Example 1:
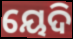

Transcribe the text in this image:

ୟେଦି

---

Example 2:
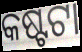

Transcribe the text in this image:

କଷ୍ଟଟା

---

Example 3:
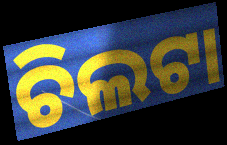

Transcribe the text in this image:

ଚିଲଟା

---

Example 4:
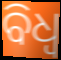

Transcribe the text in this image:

ବିଧ୍ଵ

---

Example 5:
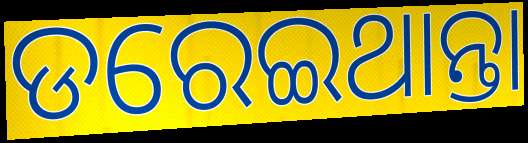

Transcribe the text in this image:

ଡରେଇଥାନ୍ତା